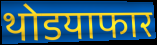
थोडयाफार